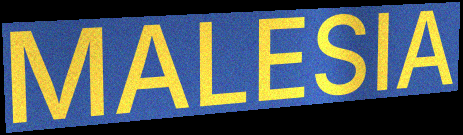
MALESIA